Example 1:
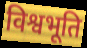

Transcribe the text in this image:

विश्वभूति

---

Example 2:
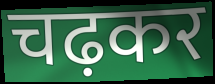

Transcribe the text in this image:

चढ़कर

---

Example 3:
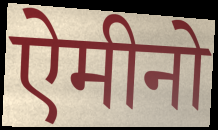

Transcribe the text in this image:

ऐमीनो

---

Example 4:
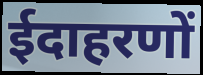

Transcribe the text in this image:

ईदाहरणों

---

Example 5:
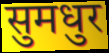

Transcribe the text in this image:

सुमधुर